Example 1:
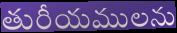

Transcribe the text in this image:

తురీయములను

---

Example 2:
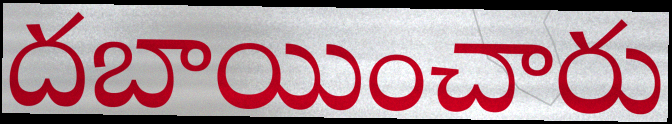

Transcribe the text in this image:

దబాయించారు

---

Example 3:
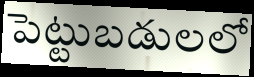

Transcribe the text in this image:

పెట్టుబడులలో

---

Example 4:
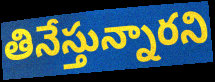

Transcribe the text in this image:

తినేస్తున్నారని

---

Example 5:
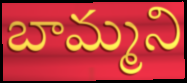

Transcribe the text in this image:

బామ్మని